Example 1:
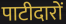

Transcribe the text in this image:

पाटीदारों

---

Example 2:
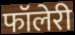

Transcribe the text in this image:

फॉलेरी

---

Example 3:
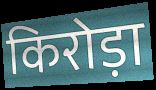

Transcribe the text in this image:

किरोड़ा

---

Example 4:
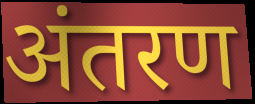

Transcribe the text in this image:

अंतरण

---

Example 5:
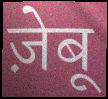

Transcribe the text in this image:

ज़ेबू